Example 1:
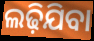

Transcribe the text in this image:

ଲଢ଼ିଯିବା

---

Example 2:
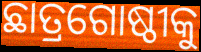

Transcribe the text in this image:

ଛାତ୍ରଗୋଷ୍ଠୀକୁ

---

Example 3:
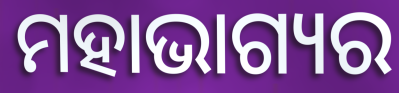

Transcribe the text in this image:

ମହାଭାଗ୍ୟର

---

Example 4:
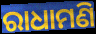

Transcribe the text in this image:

ରାଧାମଣି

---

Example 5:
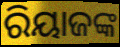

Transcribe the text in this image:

ରିୟାଜଙ୍କ